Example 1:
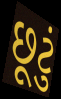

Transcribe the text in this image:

છૂટું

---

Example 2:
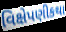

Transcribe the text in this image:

વિક્ષેપણીકથા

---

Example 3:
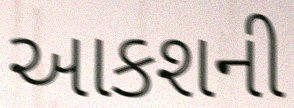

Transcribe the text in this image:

આકશની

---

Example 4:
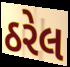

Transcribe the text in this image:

ઠરેલ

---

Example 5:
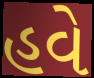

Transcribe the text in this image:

હવે